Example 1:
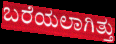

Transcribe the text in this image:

ಬರೆಯಲಾಗಿತ್ತು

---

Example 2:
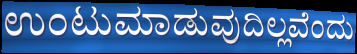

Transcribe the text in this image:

ಉಂಟುಮಾಡುವುದಿಲ್ಲವೆಂದು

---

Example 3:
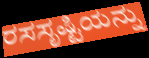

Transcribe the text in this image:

ರಸಸೃಷ್ಟಿಯನ್ನು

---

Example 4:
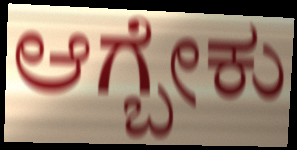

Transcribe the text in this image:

ಆಗ್ಬೇಕು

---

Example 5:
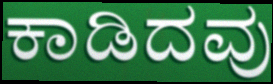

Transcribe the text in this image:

ಕಾಡಿದವು